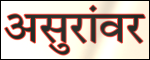
असुरांवर